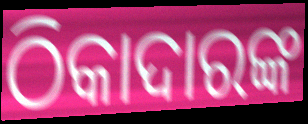
ଠିକାଦାରଙ୍କ